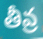
తీవ్ర